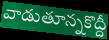
వాడుతూన్నకొద్దీ